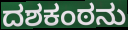
ದಶಕಂಠನು